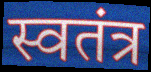
स्वतंत्र